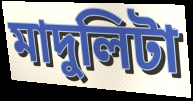
মাদুলিটা